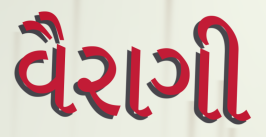
વૈરાગી